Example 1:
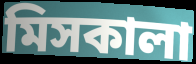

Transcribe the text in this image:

মিসকালা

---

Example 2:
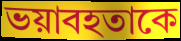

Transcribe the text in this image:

ভয়াবহতাকে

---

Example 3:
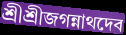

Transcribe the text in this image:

শ্রীশ্রীজগন্নাথদেব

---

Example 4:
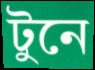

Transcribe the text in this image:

টুনে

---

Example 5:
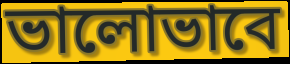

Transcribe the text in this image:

ভালোভাবে